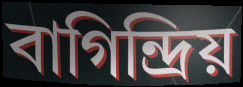
বাগিন্দ্ৰিয়